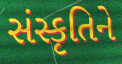
સંસ્કૃતિને